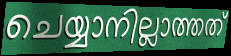
ചെയ്യാനില്ലാത്തത്